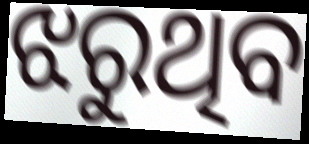
ଝରୁଥିବ